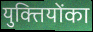
युक्तियोंका